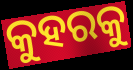
କୁହରକୁ